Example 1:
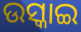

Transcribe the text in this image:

ଉସ୍କାଇ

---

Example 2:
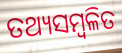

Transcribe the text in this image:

ତଥ୍ୟସମ୍ୱଳିତ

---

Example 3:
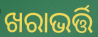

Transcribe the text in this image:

ଖରାଭର୍ତ୍ତି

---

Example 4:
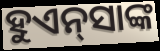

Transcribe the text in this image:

ହୁଏନ୍‍ସାଙ୍କ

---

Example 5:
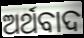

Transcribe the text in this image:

ଅର୍ଥବାଦ